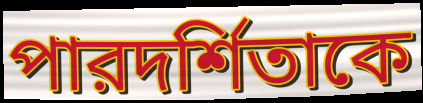
পারদর্শিতাকে